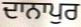
ਦਾਨਾਪੁਰ